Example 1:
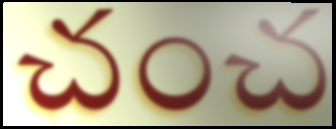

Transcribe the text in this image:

చంచ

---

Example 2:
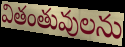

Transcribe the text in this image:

వితంతువులను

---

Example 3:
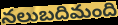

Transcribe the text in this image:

నలుబదిమంది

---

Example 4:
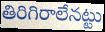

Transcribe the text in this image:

తిరిగిరాలేనట్టు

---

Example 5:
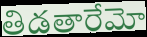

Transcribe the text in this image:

తిడతారేమో